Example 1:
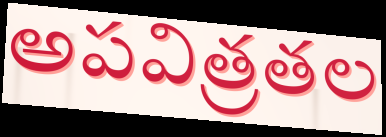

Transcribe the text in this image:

అపవిత్రతల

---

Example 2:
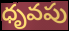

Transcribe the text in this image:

ధృవపు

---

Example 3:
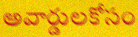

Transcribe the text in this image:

అవార్డులకోసం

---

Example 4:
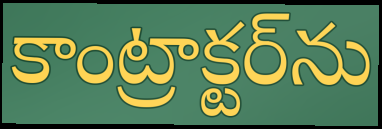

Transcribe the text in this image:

కాంట్రాక్టర్‌ను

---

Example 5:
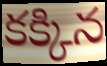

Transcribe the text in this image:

కక్కిన